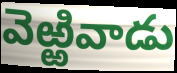
వెఱ్ఱివాడు